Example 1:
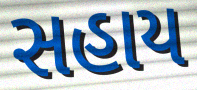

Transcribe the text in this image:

સહાય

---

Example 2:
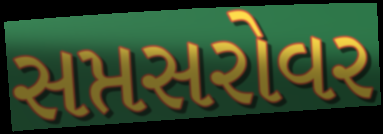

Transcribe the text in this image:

સપ્તસરોવર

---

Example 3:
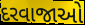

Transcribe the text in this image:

દરવાજાઓ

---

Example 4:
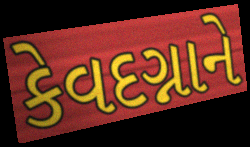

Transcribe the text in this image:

કેવદગ્નાને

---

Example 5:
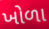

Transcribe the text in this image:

ખોળા